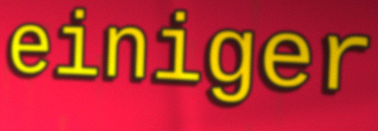
einiger